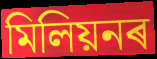
মিলিয়নৰ